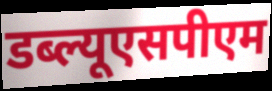
डब्ल्यूएसपीएम